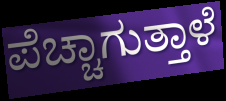
ಪೆಚ್ಚಾಗುತ್ತಾಳೆ